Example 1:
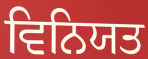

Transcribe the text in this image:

ਵਿਨਿਯਤ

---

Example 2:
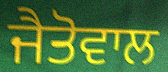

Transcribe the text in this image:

ਜੈਤੋਵਾਲ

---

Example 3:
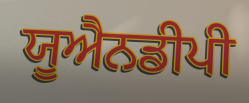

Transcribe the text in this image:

ਯੂਐਨਡੀਪੀ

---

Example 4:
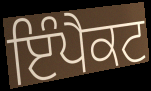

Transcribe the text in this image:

ਇੰਪੈਕਟ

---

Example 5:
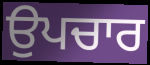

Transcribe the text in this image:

ਉਪਚਾਰ